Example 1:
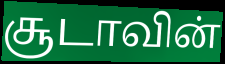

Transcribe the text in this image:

சூடாவின்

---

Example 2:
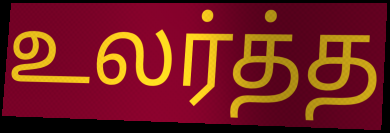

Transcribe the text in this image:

உலர்த்த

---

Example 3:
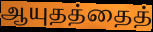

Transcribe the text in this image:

ஆயுதத்தைத்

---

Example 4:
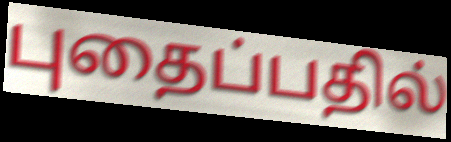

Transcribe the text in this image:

புதைப்பதில்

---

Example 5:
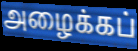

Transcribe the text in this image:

அழைக்கப்